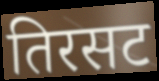
तिरसट